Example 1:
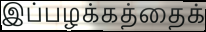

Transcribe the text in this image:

இப்பழக்கத்தைக்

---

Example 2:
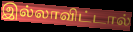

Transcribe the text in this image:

இல்லாவிட்டால்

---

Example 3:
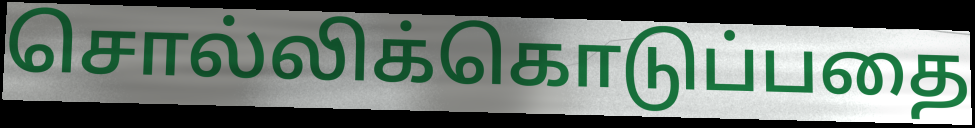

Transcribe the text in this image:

சொல்லிக்கொடுப்பதை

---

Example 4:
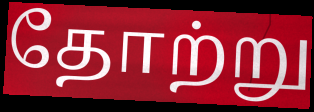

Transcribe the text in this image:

தோற்று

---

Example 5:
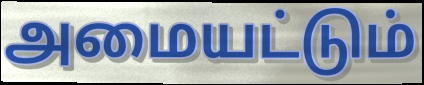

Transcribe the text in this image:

அமையட்டும்